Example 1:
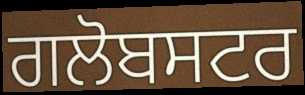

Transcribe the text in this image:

ਗਲੋਬਸਟਰ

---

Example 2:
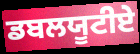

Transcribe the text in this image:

ਡਬਲਯੂਟੀਏ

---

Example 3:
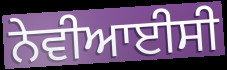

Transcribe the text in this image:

ਨੇਵੀਆਈਸੀ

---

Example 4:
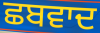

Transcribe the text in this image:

ਛਬਵਾਦ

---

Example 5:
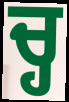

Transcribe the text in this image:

ਚ੍ਹ